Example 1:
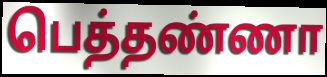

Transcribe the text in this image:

பெத்தண்ணா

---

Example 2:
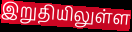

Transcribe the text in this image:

இறுதியிலுள்ள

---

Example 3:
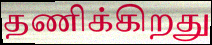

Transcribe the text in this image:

தணிக்கிறது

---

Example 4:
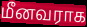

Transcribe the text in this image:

மீனவராக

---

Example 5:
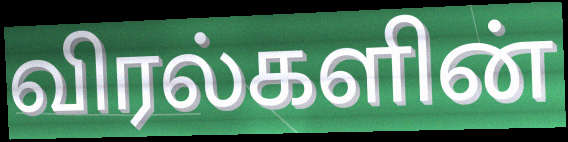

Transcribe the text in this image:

விரல்களின்